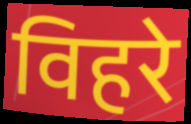
विहरे